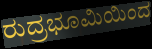
ರುದ್ರಭೂಮಿಯಿಂದ